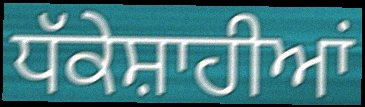
ਧੱਕੇਸ਼ਾਹੀਆਂ